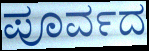
ಪೂರ್ವದ